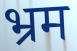
भ्रम